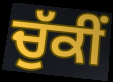
ਚੁੱਕੀਂ